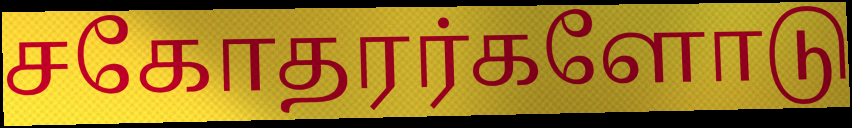
சகோதரர்களோடு